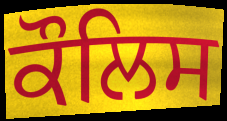
ਕੌਲਿਸ